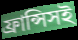
ফ্রান্সিসই